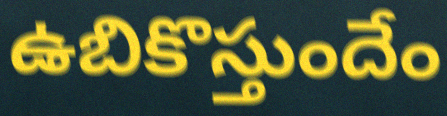
ఉబికొస్తుందేం